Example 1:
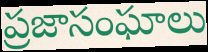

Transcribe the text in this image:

ప్రజాసంఘాలు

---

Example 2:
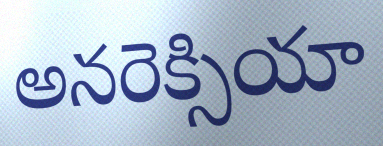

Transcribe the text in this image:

అనరెక్సియా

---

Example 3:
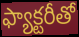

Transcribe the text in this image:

ఫ్యాక్టరీతో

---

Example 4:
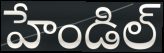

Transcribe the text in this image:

హేండిల్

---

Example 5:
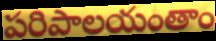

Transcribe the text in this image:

పరిపాలయంతాం